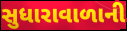
સુધારાવાળાની